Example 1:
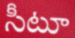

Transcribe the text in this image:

సీటూ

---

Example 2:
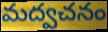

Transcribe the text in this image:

మద్వచనం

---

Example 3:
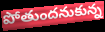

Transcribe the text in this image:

పోతుందనుకున్న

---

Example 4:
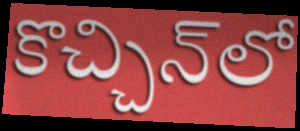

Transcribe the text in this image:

కొచ్చిన్‌లో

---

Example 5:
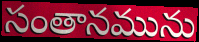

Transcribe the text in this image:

సంతానమును